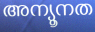
അന്യൂനത